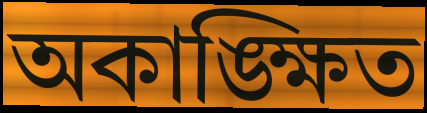
অকাঙ্ক্ষিত